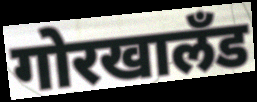
गोरखालॅंड